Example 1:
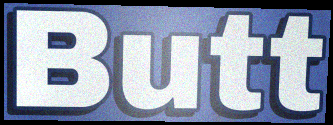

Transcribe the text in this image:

Butt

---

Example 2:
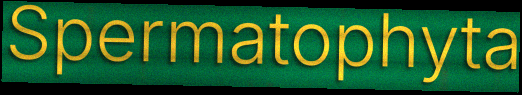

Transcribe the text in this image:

Spermatophyta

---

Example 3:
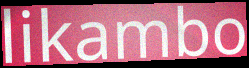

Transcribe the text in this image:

likambo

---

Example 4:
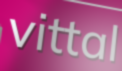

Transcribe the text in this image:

vittal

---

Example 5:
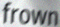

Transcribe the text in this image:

frown